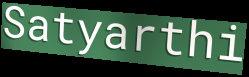
Satyarthi